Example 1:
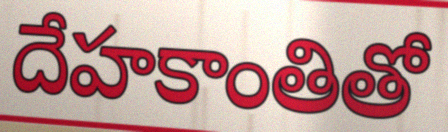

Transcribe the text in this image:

దేహకాంతితో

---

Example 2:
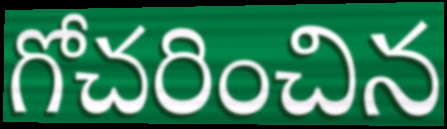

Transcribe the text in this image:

గోచరించిన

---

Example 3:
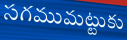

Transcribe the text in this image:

సగముమట్టుకు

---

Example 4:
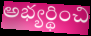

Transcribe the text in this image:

అభ్యర్థించి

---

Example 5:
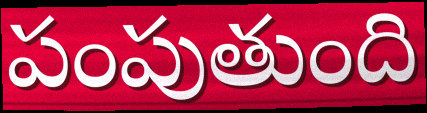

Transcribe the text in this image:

పంపుతుంది